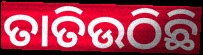
ତାତିଉଠିଛି